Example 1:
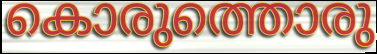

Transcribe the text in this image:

കൊരുത്തൊരു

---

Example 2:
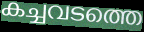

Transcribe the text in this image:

കച്ചവടത്തെ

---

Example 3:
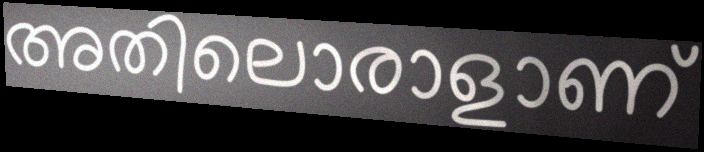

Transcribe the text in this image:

അതിലൊരാളാണ്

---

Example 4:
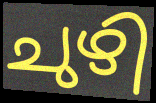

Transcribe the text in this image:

ചുഴി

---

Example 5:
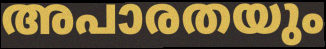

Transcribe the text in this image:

അപാരതയും